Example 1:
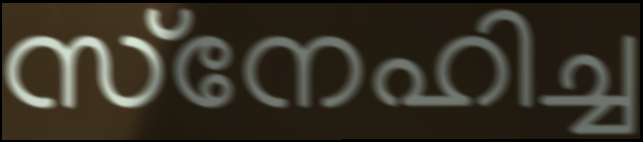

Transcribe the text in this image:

സ്‌നേഹിച്ച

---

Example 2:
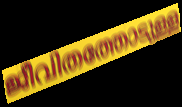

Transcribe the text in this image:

ജീവിതത്തോടുള്ള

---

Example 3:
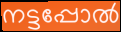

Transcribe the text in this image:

നട്ടപ്പോൽ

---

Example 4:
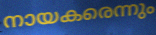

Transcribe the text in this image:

നായകരെന്നും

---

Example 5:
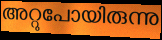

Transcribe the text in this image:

അറ്റുപോയിരുന്നു